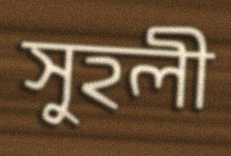
সুহলী